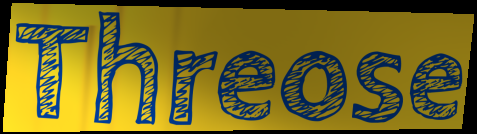
Threose